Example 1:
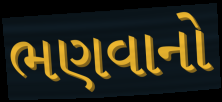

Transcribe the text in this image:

ભણવાનો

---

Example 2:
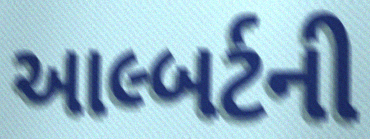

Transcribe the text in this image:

આલ્બર્ટની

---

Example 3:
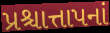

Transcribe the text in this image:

પ્રશ્ચાત્તાપનાં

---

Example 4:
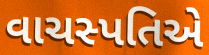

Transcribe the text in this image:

વાચસ્પતિએ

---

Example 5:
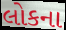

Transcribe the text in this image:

લોકના